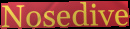
Nosedive